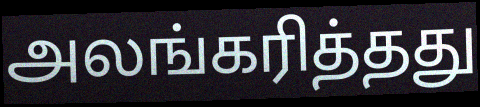
அலங்கரித்தது